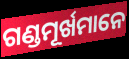
ଗଣ୍ଡମୂର୍ଖମାନେ